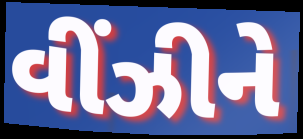
વીંઝીને